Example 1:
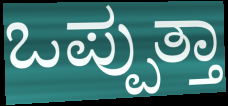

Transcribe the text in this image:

ಒಪ್ಪುತ್ತಾ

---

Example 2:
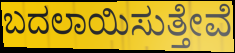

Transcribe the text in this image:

ಬದಲಾಯಿಸುತ್ತೇವೆ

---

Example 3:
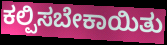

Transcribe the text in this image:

ಕಲ್ಪಿಸಬೇಕಾಯಿತು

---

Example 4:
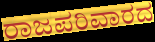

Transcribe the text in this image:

ರಾಜಪರಿವಾರದ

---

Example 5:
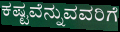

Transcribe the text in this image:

ಕಷ್ಟವೆನ್ನುವವರಿಗೆ